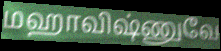
மஹாவிஷ்ணுவே